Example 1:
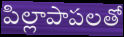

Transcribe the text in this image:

పిల్లాపాపలతో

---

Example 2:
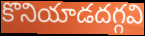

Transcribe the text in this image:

కొనియాడదగ్గవి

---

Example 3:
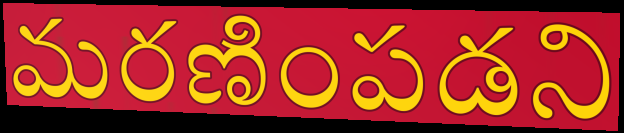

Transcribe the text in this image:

మరణింపడని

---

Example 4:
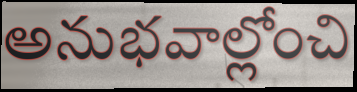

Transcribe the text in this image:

అనుభవాల్లోంచి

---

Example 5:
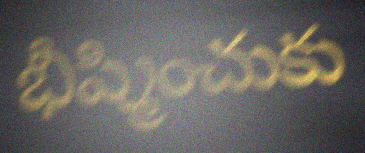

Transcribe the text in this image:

భీష్మించుకు